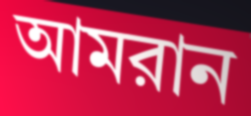
আমরান